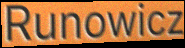
Runowicz